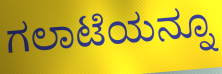
ಗಲಾಟೆಯನ್ನೂ